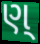
ણ્